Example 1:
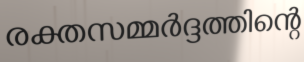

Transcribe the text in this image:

രക്തസമ്മർദ്ദത്തിന്റെ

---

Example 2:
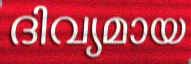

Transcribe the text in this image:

ദിവ്യമായ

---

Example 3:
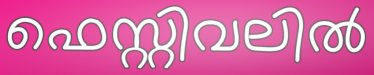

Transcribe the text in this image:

ഫെസ്റ്റിവലിൽ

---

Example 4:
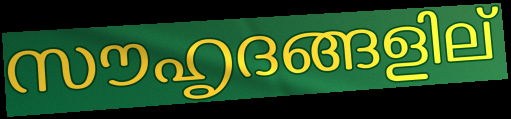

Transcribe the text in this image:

സൗഹൃദങ്ങളില്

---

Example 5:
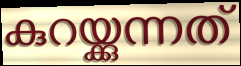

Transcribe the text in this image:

കുറയ്ക്കുന്നത്